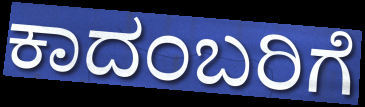
ಕಾದಂಬರಿಗೆ